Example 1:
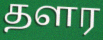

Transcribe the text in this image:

தளர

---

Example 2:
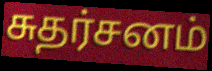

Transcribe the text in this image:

சுதர்சனம்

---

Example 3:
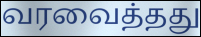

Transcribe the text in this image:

வரவைத்தது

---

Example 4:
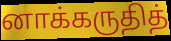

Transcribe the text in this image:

னாக்கருதித்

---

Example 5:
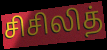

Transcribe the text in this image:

சிசிலித்